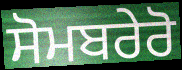
ਸੋਮਬਰੇਰੋ